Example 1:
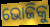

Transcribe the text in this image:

ଭୋଜିକୁ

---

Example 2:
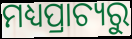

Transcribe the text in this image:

ମଧ୍ୟପ୍ରାଚ୍ୟରୁ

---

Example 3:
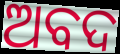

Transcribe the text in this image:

ଅବଦ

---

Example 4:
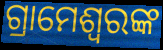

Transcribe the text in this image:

ଗ୍ରାମେଶ୍ୱରଙ୍କ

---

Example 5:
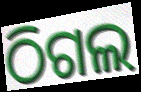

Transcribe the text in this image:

ଠିଗଲ